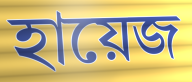
হায়েজ